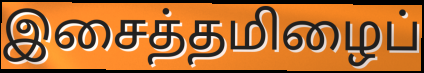
இசைத்தமிழைப்